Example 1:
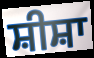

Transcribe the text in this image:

ਸ਼ੀਸ਼ਾ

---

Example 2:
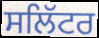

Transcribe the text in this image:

ਸਲਿੱਟਰ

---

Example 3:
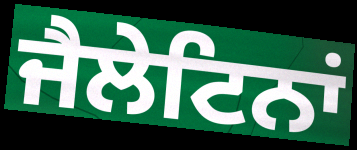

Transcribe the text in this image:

ਜੈਲੇਟਿਨਾਂ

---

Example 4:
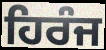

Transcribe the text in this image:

ਹਿਰੰਜ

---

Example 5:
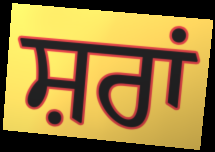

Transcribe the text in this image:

ਸ਼ਰਾਂ